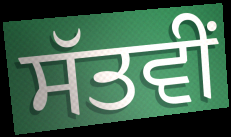
ਸੱਤਵੀਂ